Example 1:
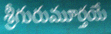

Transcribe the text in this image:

శ్రీగురుమూర్తయే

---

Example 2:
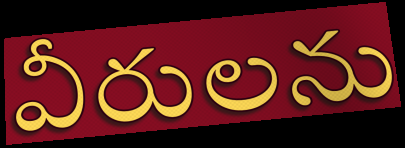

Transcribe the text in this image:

వీరులను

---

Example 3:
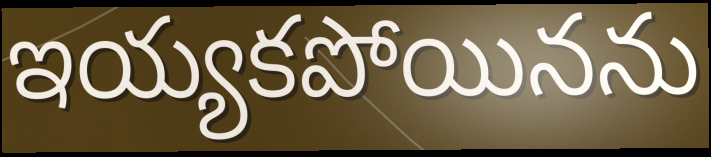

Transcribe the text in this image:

ఇయ్యకపోయినను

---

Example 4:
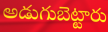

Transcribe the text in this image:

అడుగుబెట్టారు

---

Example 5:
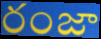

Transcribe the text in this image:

రంజా